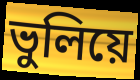
ভুলিয়ে